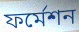
ফর্মেশন